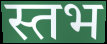
स्तभ